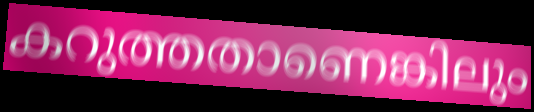
കറുത്തതാണെങ്കിലും